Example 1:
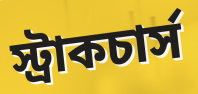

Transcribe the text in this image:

স্ট্রাকচার্স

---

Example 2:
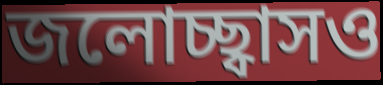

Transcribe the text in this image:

জলোচ্ছ্বাসও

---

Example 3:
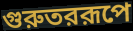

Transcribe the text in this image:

গুরুতররূপে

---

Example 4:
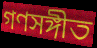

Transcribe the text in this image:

গণসঙ্গীত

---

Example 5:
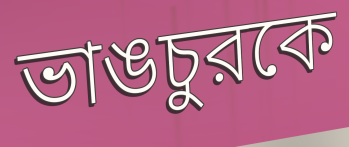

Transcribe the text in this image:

ভাঙচুরকে